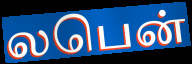
லபென்